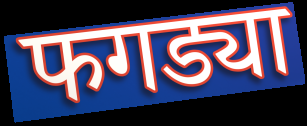
फगड्या